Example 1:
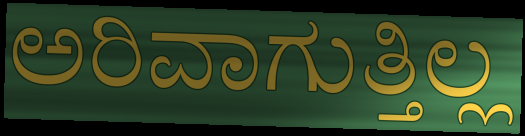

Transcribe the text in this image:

ಅರಿವಾಗುತ್ತಿಲ್ಲ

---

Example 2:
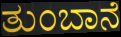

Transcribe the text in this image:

ತುಂಬಾನೆ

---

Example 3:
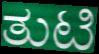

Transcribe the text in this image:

ತುಟಿ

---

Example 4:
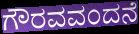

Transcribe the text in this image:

ಗೌರವವಂದನೆ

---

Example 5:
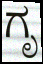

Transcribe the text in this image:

ಗೃ